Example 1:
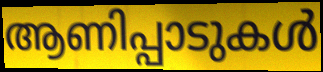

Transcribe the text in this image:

ആണിപ്പാടുകൾ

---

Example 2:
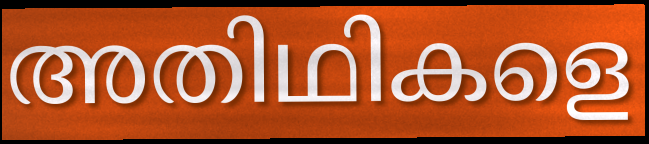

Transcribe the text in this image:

അതിഥികളെ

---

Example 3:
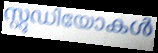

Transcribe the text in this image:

സ്റ്റുഡിയോകൾ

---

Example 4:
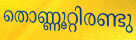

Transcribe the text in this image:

തൊണ്ണൂറ്റിരണ്ടു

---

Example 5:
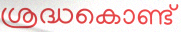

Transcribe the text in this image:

ശ്രദ്ധകൊണ്ട്